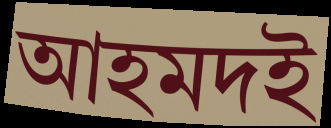
আহমদই